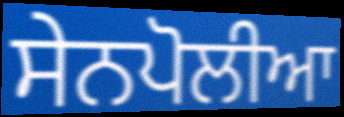
ਸੇਨਪੋਲੀਆ